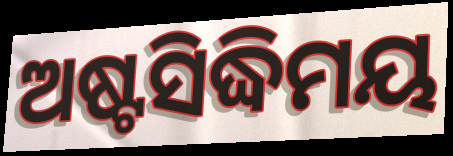
ଅଷ୍ଟସିଦ୍ଧିମୟ